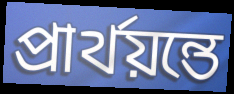
প্রার্থয়ন্তে